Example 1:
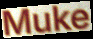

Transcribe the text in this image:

Muke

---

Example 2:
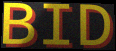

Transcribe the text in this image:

BID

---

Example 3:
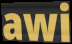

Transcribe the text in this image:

awi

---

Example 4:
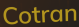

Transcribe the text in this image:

Cotran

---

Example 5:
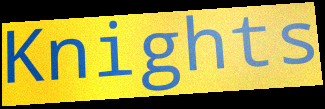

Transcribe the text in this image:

Knights